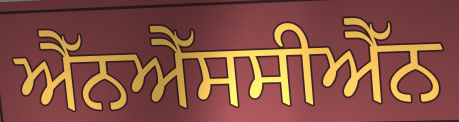
ਐੱਨਐੱਸਸੀਐੱਨ